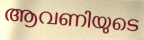
ആവണിയുടെ